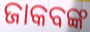
ଜାକବଙ୍କ